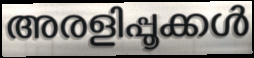
അരളിപ്പൂക്കൾ